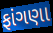
ફાંગણા